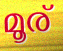
മൂര്